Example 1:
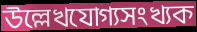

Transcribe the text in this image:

উল্লেখযোগ্যসংখ্যক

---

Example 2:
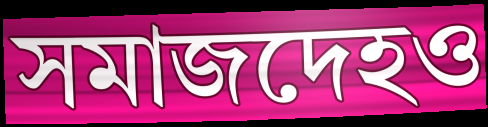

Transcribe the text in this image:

সমাজদেহও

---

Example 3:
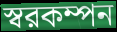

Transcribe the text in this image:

স্বরকম্পন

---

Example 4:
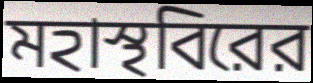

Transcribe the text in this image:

মহাস্থবিরের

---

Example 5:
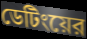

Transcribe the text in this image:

ডেটিংয়ের